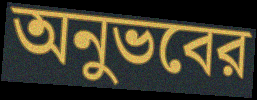
অনুভবের